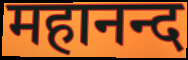
महानन्द